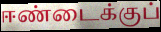
ஈண்டைக்குப்